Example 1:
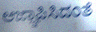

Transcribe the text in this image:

ಆಜ್ಞಾಪಿಸಿದಂತೆ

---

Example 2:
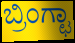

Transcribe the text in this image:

ಬ್ರಿಂಗ್ಟಾ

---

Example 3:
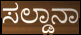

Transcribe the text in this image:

ಸಲ್ಡಾನಾ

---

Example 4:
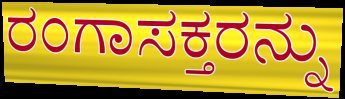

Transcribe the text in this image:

ರಂಗಾಸಕ್ತರನ್ನು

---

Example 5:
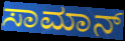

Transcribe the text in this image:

ಸಾಮಾನ್